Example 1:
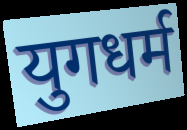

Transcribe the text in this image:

युगधर्म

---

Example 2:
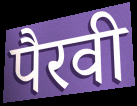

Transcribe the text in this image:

पैरवी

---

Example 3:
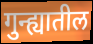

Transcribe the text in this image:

गुन्ह्यातील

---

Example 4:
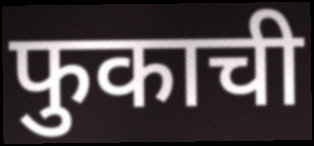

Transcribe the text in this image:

फुकाची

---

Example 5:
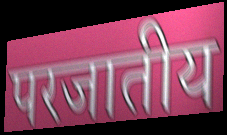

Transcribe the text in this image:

परजातीय